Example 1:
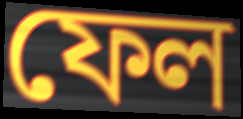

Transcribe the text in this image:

ফেল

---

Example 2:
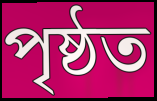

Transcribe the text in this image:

পৃষ্ঠত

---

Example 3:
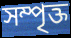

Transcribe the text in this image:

সম্পৃক্ত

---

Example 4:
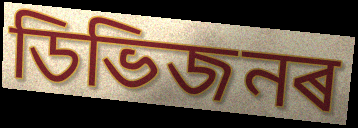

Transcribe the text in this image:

ডিভিজনৰ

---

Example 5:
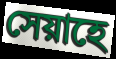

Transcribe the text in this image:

সেয়াহে